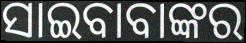
ସାଇବାବାଙ୍କର